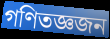
গণিতজ্ঞজন